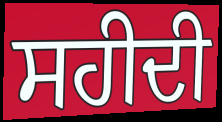
ਸਹੀਦੀ